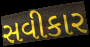
સવીકાર